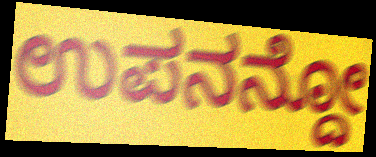
ಉಪನನ್ದೋ